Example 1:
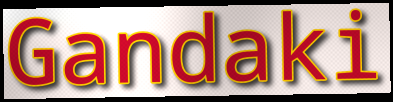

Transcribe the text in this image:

Gandaki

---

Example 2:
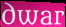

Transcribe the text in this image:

dwar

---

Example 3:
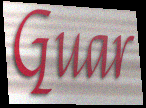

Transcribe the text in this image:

Guar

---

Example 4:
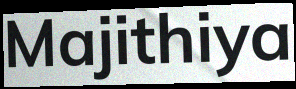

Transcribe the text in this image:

Majithiya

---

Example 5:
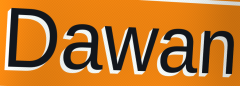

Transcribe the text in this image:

Dawan